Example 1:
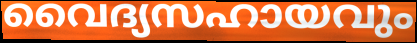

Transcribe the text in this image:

വൈദ്യസഹായവും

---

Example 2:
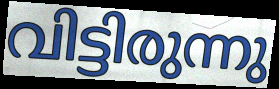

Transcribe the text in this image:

വിട്ടിരുന്നു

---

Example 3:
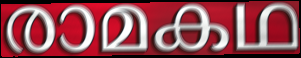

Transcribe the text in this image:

രാമകഥ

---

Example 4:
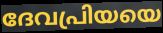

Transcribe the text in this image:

ദേവപ്രിയയെ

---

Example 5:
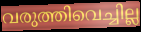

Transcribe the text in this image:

വരുത്തിവെച്ചില്ല